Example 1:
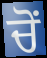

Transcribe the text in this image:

ਚੋਂ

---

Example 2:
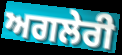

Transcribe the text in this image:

ਅਗਲੇਰੀ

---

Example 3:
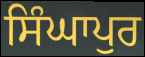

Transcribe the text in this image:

ਸਿੰਘਾਪੁਰ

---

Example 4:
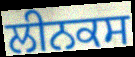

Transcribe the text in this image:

ਲੀਨਕਸ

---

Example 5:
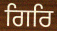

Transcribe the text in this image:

ਗਿਰਿ